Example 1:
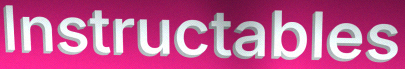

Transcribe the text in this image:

Instructables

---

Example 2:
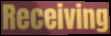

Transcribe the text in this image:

Receiving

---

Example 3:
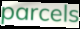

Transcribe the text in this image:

parcels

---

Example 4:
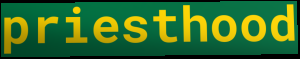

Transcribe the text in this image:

priesthood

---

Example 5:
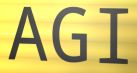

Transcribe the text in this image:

AGI